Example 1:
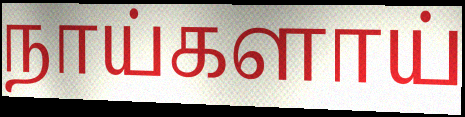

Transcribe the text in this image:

நாய்களாய்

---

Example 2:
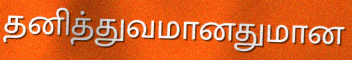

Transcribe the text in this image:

தனித்துவமானதுமான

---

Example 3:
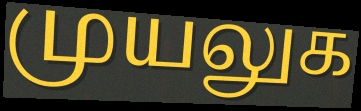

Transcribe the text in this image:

முயலுக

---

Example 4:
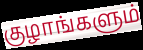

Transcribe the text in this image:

குழாங்களும்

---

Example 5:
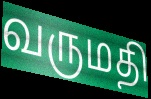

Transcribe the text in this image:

வருமதி